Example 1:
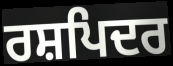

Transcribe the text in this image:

ਰਸ਼ਪਿਦਰ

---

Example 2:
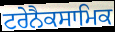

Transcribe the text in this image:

ਟਰੇਨੈਕਸਾਮਿਕ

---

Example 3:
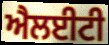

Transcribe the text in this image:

ਐਲਈਟੀ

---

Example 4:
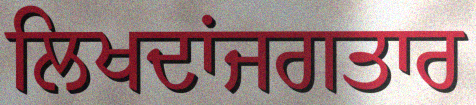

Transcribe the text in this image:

ਲਿਖਦਾਂਜਗਤਾਰ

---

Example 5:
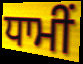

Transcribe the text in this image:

ਧਾਮੀਂ